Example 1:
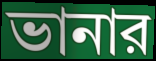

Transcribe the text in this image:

ভানার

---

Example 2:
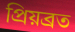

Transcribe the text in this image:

প্রিয়ব্রত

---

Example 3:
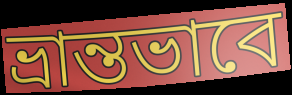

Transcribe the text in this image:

ভ্রান্তভাবে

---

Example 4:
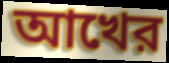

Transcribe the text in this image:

আখের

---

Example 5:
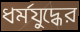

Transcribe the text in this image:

ধর্মযুদ্ধের